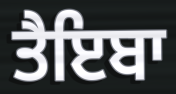
ਤੈਇਬਾ